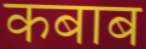
कबाब